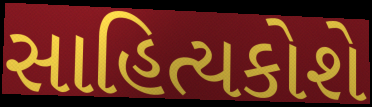
સાહિત્યકોશે